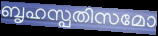
ബൃഹസ്പതിസമോ